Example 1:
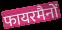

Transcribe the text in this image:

फायरमैनों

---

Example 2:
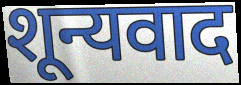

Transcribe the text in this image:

शून्यवाद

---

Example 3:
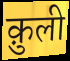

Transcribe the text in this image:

क़ुली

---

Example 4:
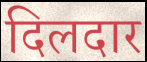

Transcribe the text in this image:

दिलदार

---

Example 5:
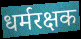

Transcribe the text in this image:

धर्मरक्षक